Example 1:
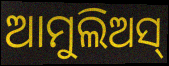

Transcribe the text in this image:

ଆମୁଲିଅସ୍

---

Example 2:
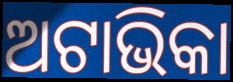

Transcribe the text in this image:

ଅଟାଭିକା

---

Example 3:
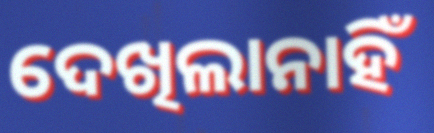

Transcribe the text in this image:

ଦେଖିଲାନାହିଁ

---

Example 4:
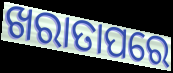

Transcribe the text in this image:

ଖରାତାପରେ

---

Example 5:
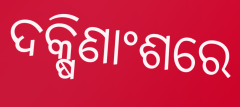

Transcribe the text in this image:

ଦକ୍ଷିଣାଂଶରେ